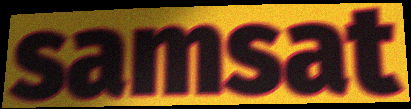
samsat